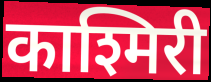
काश्मिरी